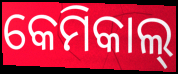
କେମିକାଲ୍